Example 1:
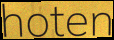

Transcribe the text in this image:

hoten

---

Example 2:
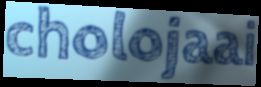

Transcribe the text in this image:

cholojaai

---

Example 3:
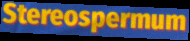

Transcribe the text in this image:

Stereospermum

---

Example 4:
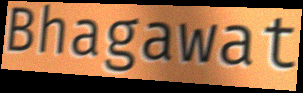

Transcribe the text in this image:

Bhagawat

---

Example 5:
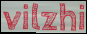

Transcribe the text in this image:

vilzhi